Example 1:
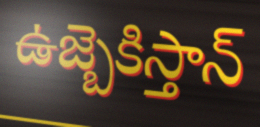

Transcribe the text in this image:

ఉజ్బెకిస్తాన్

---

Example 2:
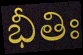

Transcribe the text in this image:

భీతిః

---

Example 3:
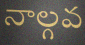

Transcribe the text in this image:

నాల్గవ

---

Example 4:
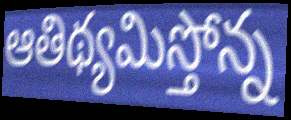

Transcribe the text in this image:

ఆతిథ్యమిస్తోన్న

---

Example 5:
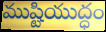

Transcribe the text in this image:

ముష్టియుద్ధం